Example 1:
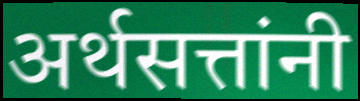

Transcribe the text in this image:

अर्थसत्तांनी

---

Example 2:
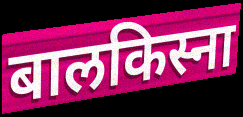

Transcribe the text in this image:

बालकिस्ना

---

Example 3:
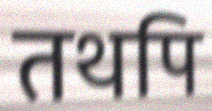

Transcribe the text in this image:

तथपि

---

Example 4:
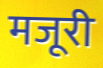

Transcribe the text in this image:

मजूरी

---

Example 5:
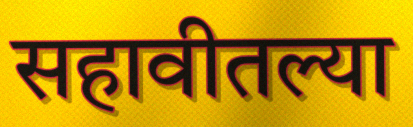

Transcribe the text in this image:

सहावीतल्या